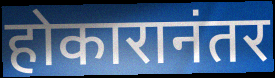
होकारानंतर